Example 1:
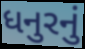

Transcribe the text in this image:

ધનુરનું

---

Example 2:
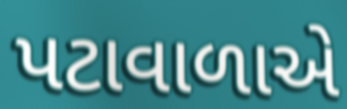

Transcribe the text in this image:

પટાવાળાએ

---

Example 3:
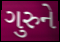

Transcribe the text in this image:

ગુરુને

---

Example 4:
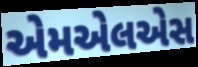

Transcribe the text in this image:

એમએલએસ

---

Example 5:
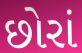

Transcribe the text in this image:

છોરાં